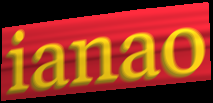
ianao